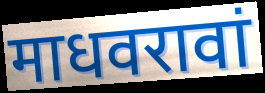
माधवरावां